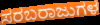
ಸರಬರಾಜುಗಳ